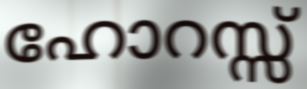
ഹോറസ്സ്